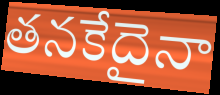
తనకేదైనా